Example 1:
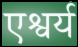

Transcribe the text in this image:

एश्वर्य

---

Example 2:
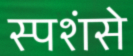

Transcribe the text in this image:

स्पशंसे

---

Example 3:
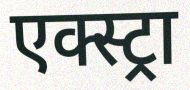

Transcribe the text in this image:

एक्स्ट्रा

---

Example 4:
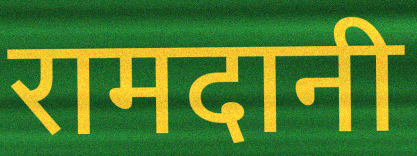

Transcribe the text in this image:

रामदानी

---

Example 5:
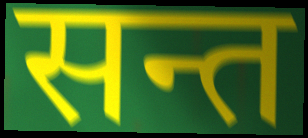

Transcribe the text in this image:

सन्‍त